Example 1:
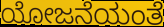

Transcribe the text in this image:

ಯೋಜನೆಯಂತೆ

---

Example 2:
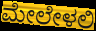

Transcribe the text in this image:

ಮೇಲೇಳಲಿ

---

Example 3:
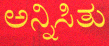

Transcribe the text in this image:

ಅನ್ನಿಸಿತು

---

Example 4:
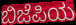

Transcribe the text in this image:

ಬಿಜೆಪಿಯ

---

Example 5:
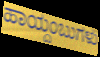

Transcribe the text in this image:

ಹಾಯ್ದಂಬುಗಳು